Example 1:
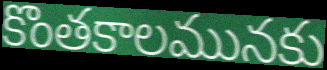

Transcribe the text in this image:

కొంతకాలమునకు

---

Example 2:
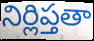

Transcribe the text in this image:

నిర్లిప్తతా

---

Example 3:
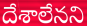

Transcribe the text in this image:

దేశాలేనని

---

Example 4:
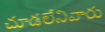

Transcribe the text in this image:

చూడలేనివారు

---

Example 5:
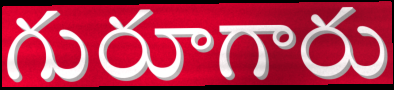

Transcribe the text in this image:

గురూగారు